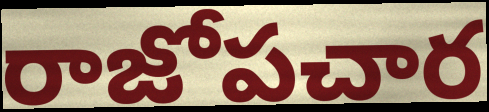
రాజోపచార